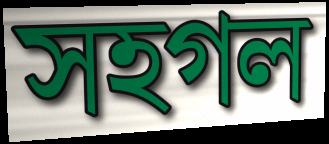
সহগল